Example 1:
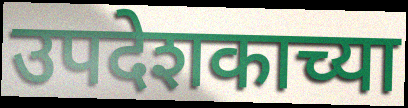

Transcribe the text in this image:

उपदेशकाच्या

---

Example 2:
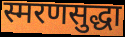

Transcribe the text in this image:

स्मरणसुद्धा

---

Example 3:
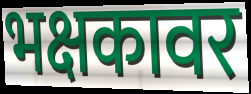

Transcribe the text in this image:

भक्षकावर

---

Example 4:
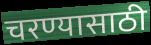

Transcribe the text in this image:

चरण्यासाठी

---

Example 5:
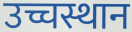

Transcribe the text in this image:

उच्चस्थान